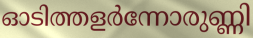
ഓടിത്തളർന്നോരുണ്ണി